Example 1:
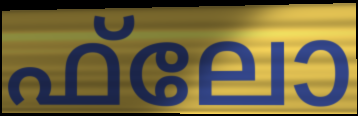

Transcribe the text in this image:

ഫ്‌ലോ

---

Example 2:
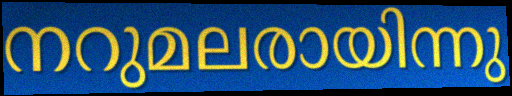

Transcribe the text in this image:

നറുമലരായിന്നു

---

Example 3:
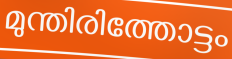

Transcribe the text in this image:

മുന്തിരിത്തോട്ടം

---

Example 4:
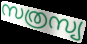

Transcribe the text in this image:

സത്രസ്യ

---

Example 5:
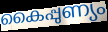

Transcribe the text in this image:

കൈപ്പുണ്യം